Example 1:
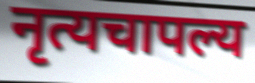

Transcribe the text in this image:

नृत्यचापल्य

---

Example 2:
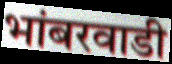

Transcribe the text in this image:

भांबरवाडी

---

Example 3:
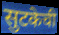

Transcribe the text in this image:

सुटकेची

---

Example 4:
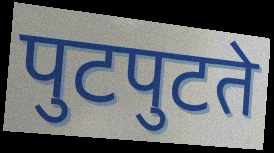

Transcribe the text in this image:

पुटपुटते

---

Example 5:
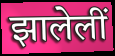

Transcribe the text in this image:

झालेलीं